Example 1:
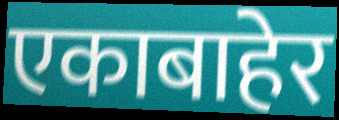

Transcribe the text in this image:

एकाबाहेर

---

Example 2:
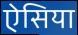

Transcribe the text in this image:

ऐसिया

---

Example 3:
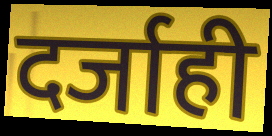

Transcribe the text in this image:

दर्जाही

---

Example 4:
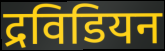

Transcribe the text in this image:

द्रविडियन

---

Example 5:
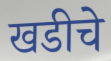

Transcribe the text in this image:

खडीचे